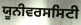
ਯੂਨੀਵਰਸਸਿਟੀ